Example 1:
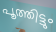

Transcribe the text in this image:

പൂത്തിട്ടും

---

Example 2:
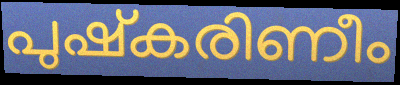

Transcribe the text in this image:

പുഷ്കരിണീം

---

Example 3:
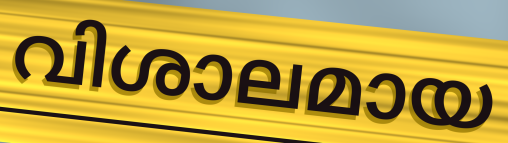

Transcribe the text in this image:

വിശാലമായ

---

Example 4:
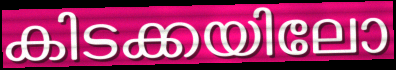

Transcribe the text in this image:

കിടക്കയിലോ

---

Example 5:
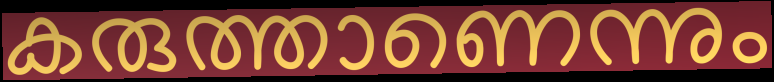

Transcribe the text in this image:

കരുത്താണെന്നും